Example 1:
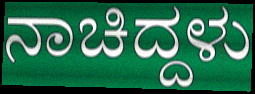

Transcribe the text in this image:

ನಾಚಿದ್ದಳು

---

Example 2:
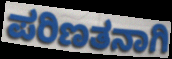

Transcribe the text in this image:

ಪರಿಣತನಾಗಿ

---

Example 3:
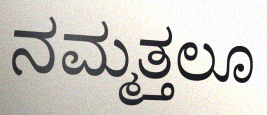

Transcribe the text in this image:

ನಮ್ಮತ್ತಲೂ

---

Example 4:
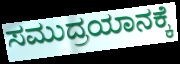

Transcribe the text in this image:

ಸಮುದ್ರಯಾನಕ್ಕೆ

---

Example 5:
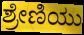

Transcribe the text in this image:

ಶ್ರೇಣಿಯು